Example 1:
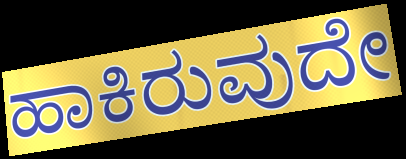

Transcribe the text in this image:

ಹಾಕಿರುವುದೇ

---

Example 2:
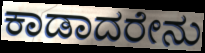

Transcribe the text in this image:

ಕಾಡಾದರೇನು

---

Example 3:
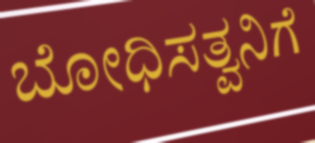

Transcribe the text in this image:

ಬೋಧಿಸತ್ವನಿಗೆ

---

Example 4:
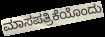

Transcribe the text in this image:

ಮಾಸಪತ್ರಿಕೆಯೊಂದು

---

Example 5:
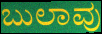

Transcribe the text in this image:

ಬುಲಾವು